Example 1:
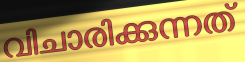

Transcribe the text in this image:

വിചാരിക്കുന്നത്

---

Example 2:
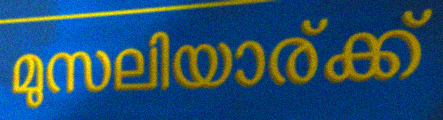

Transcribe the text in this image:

മുസലിയാര്ക്ക്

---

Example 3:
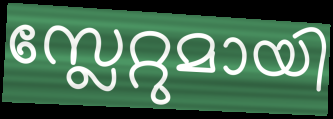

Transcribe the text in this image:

സ്ലേറ്റുമായി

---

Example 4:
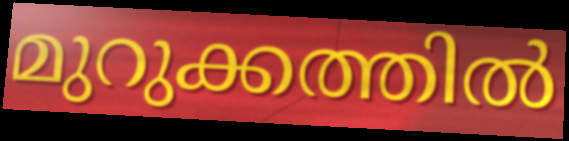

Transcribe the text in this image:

മുറുക്കത്തിൽ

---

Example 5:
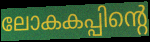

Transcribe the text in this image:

ലോകകപ്പിന്റെ